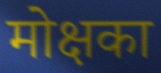
मोक्षका